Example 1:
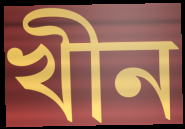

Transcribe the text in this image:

খীন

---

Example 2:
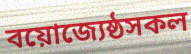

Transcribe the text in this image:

বয়োজ্যেষ্ঠসকল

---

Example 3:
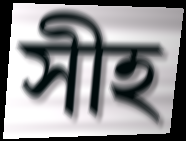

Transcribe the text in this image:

সীহ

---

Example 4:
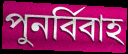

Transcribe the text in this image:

পুনৰ্বিবাহ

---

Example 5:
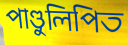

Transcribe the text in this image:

পাণ্ডুলিপিত